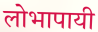
लोभापायी